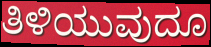
ತಿಳಿಯುವುದೂ